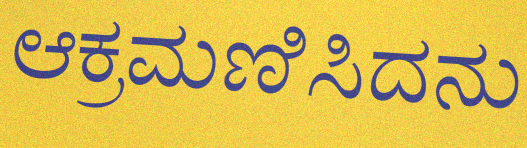
ಆಕ್ರಮಣಿಸಿದನು